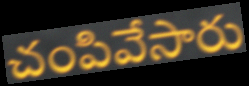
చంపివేసారు